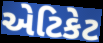
એટિકેટ